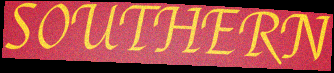
SOUTHERN